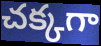
చక్కగా